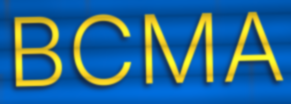
BCMA